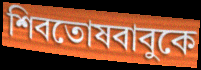
শিবতোষবাবুকে